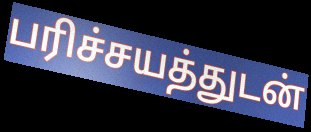
பரிச்சயத்துடன்